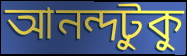
আনন্দটুকু